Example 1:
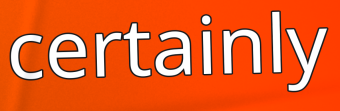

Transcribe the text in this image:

certainly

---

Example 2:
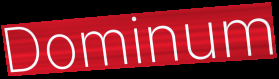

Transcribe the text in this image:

Dominum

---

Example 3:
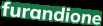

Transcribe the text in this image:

furandione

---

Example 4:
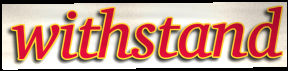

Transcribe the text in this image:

withstand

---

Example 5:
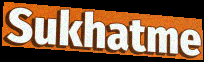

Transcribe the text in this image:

Sukhatme